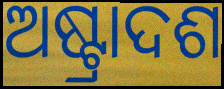
ଅଷ୍ଟ୍ରାଦଶ